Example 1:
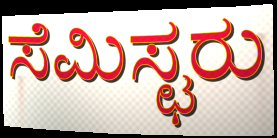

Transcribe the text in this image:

ಸೆಮಿಸ್ಟರು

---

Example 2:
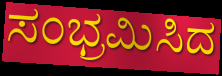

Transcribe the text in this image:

ಸಂಭ್ರಮಿಸಿದ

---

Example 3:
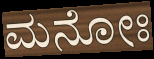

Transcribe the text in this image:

ಮನೋಃ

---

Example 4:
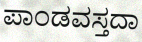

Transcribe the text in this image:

ಪಾಂಡವಸ್ತದಾ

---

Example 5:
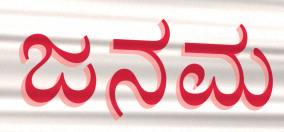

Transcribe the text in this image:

ಜನಮ